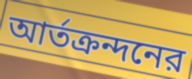
আর্তক্রন্দনের